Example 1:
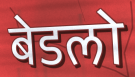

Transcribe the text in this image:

बेडलो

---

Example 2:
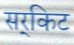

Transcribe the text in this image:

सर्किट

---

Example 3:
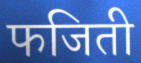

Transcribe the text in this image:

फजिती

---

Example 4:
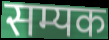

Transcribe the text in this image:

सम्यक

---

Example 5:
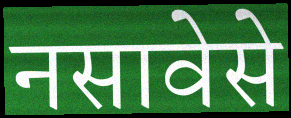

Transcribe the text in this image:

नसावेसे